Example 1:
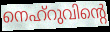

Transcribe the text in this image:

നെഹ്റുവിന്റെ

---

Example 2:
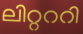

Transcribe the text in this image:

ലിറ്റററി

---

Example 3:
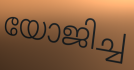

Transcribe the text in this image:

യോജിച്ച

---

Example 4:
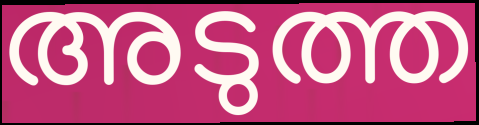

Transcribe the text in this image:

അടുത്ത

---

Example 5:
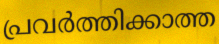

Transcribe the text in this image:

പ്രവർത്തിക്കാത്ത